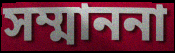
সম্মাননা